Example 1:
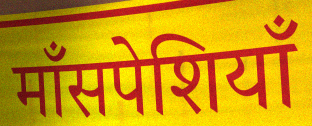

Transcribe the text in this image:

माँसपेशियाँ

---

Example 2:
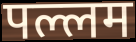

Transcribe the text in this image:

पल्लम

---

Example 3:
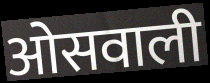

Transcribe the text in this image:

ओसवाली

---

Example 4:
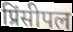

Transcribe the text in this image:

प्रिंसीपल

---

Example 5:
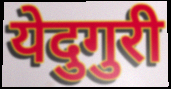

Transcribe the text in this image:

येदुगुरी